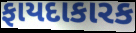
ફાયદાકારક